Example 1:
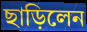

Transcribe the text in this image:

ছাড়িলেন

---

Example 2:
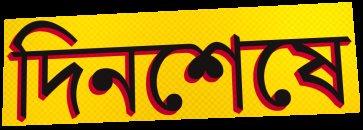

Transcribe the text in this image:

দিনশেষে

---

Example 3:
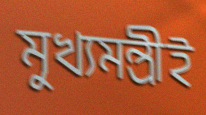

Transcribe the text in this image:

মুখ্যমন্ত্রীই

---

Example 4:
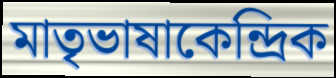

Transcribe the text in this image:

মাতৃভাষাকেন্দ্রিক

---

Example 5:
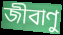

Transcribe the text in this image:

জীবাণু